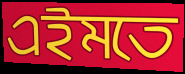
এইমতে